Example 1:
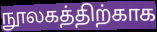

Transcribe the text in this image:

நூலகத்திற்காக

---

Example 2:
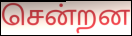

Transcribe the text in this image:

சென்றன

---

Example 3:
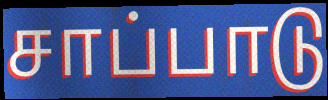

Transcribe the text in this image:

சாப்பாடு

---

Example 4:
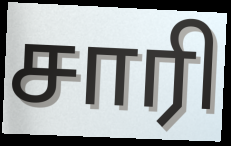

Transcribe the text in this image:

சாரி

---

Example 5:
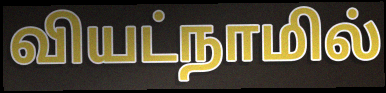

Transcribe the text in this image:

வியட்நாமில்